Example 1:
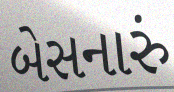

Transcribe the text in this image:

બેસનારું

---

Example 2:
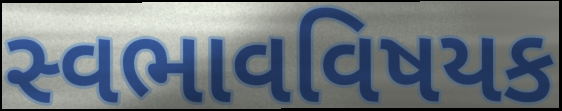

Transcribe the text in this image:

સ્વભાવવિષયક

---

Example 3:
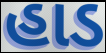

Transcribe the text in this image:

હાડ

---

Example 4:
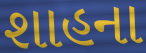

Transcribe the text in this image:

શાહના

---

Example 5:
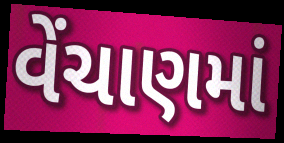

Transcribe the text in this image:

વેંચાણમાં